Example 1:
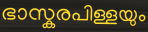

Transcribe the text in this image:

ഭാസ്കരപിള്ളയും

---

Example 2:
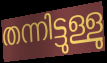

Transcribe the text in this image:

തന്നിട്ടുള്ളു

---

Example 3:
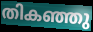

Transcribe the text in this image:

തികഞ്ഞു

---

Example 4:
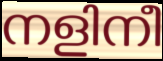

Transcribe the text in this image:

നളിനീ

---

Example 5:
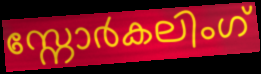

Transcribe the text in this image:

സ്നോർകലിംഗ്